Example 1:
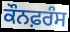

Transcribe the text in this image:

ਕੌਨਫ਼ਰੰਸ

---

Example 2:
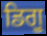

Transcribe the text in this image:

ਡਿਗੂ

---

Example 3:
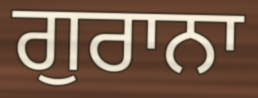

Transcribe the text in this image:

ਗੁਰਾਨਾ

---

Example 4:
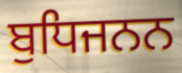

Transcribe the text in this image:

ਬੁਧਿਜਨਨ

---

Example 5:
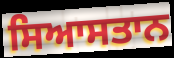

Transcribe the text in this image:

ਸਿਆਸਤਾਨ